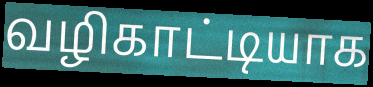
வழிகாட்டியாக